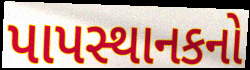
પાપસ્થાનકનો